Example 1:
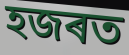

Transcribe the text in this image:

হজৰত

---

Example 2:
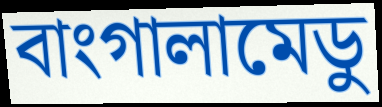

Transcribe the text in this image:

বাংগালামেডু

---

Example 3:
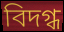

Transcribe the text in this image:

বিদগ্ধ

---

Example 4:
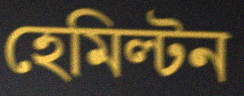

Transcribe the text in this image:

হেমিল্টন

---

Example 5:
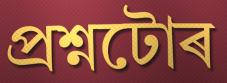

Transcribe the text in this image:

প্ৰশ্নটোৰ